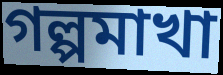
গল্পমাখা